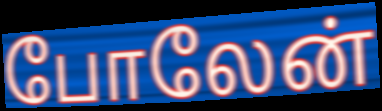
போலேன்